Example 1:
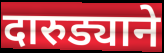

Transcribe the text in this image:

दारुड्याने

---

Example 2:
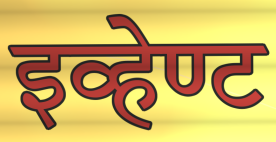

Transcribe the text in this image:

इव्हेण्ट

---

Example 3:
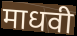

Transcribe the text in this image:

माधवी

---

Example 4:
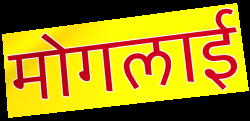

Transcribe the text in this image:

मोगलाई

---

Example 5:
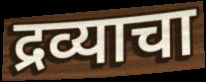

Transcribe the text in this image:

द्रव्याचा